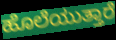
ಹೊಲೆಯುತ್ತಾರೆ